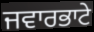
ਜਵਾਰਭਾਟੇ